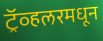
ट्रॅव्हलरमधून